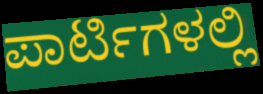
ಪಾರ್ಟಿಗಳಲ್ಲಿ